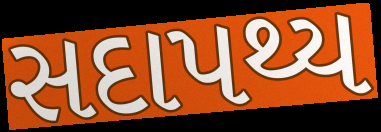
સદાપથ્ય